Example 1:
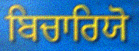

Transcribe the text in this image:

ਬਿਚਾਰਿਯੋ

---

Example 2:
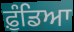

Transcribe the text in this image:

ਫ਼ੁੰਡਿਆ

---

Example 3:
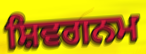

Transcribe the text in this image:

ਸ਼ਿਵਗਨਮ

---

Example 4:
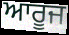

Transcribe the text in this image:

ਆਰੂਜ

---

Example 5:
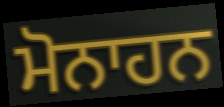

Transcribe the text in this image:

ਮੋਨਾਹਨ